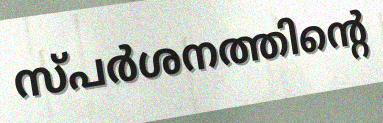
സ്പർശനത്തിന്റെ